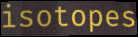
isotopes